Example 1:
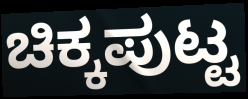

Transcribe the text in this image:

ಚಿಕ್ಕಪುಟ್ಟ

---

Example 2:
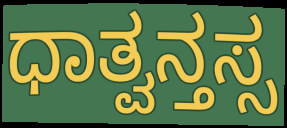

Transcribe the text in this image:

ಧಾತ್ವನ್ತಸ್ಸ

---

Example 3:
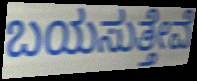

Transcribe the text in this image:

ಬಯಸುತ್ತೇವೆ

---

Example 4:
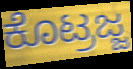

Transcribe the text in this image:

ಕೊಟ್ರಜ್ಜ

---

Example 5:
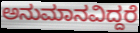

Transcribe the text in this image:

ಅನುಮಾನವಿದ್ದರೆ